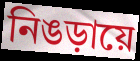
নিঙড়ায়ে